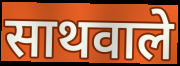
साथवाले